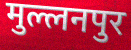
मुल्लनपुर